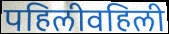
पहिलीवहिली